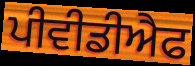
ਪੀਵੀਡੀਐਫ